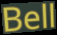
Bell